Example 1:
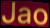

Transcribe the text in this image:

Jao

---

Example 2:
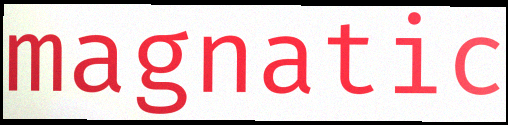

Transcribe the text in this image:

magnatic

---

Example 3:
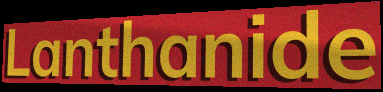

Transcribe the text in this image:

Lanthanide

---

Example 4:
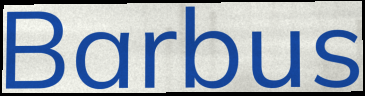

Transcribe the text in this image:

Barbus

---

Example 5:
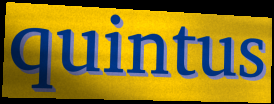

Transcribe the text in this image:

quintus